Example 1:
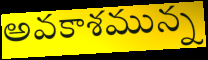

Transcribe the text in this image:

అవకాశమున్న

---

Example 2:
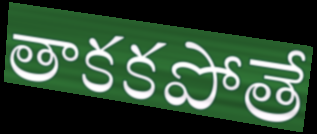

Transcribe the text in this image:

తాకకపోతే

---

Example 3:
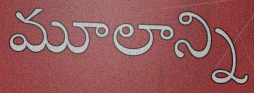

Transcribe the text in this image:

మూలాన్ని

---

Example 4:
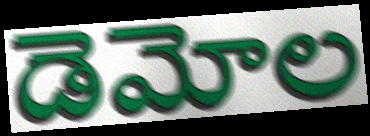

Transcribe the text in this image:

డెమోల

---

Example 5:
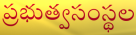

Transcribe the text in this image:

ప్రభుత్వసంస్థల